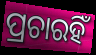
ପ୍ରଚାରହିଁ